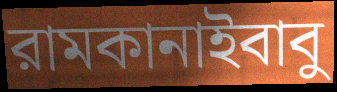
রামকানাইবাবু